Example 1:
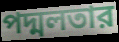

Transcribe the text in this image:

পদ্মলতার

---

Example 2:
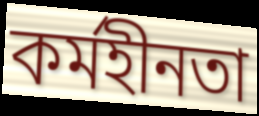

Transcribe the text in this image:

কর্মহীনতা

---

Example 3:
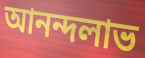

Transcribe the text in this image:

আনন্দলাভ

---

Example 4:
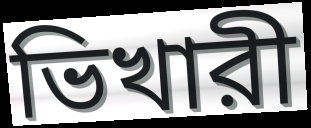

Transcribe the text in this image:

ভিখারী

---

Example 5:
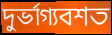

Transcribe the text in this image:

দুর্ভাগ্যবশত